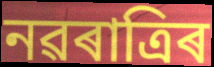
নৱৰাত্ৰিৰ